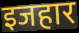
इजहार